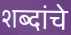
शब्दांचे